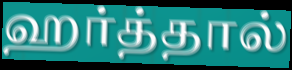
ஹர்த்தால்